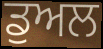
ਡੁਅਲ